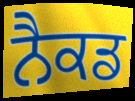
ਨੈਕਡ